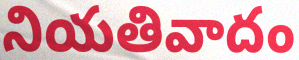
నియతివాదం